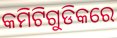
କମିଟିଗୁଡିକରେ